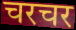
चरचर